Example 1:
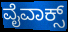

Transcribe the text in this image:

ವೈವಾಕ್ಸ್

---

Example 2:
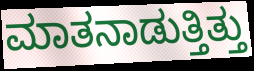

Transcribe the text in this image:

ಮಾತನಾಡುತ್ತಿತ್ತು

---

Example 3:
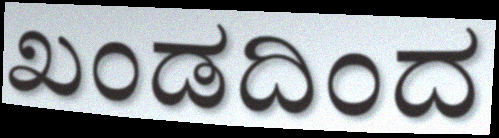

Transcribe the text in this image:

ಖಂಡದಿಂದ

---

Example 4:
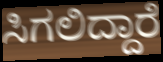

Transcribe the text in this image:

ಸಿಗಲಿದ್ದಾರೆ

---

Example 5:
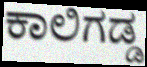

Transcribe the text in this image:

ಕಾಲಿಗಡ್ಡ